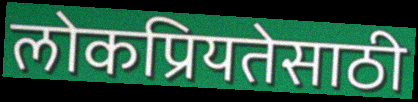
लोकप्रियतेसाठी